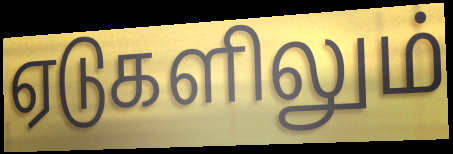
ஏடுகளிலும்